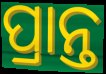
ପ୍ରାନ୍ତ